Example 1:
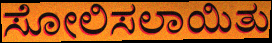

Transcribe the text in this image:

ಸೋಲಿಸಲಾಯಿತು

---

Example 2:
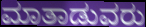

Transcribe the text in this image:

ಮಾತಾಡುವರು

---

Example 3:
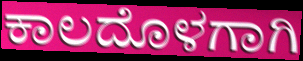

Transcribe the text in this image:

ಕಾಲದೊಳಗಾಗಿ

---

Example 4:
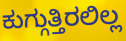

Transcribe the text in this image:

ಕುಗ್ಗುತ್ತಿರಲಿಲ್ಲ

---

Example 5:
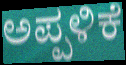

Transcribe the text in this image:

ಅಪ್ಪಳಿಕೆ